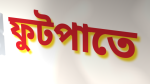
ফুটপাতে